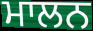
ਮਾਲਨ